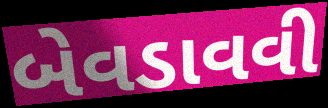
બેવડાવવી